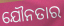
ଯୌନତାର